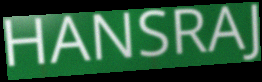
HANSRAJ